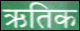
ऋतिक